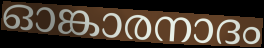
ഓങ്കാരനാദം